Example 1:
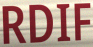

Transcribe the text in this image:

RDIF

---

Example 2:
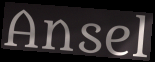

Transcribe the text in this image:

Ansel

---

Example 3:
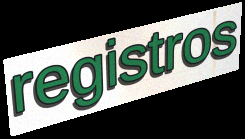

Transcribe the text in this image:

registros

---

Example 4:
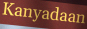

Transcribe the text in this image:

Kanyadaan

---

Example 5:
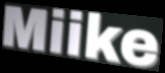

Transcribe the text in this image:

Miike